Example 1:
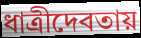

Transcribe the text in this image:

ধাত্রীদেবতায়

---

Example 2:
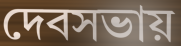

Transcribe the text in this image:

দেবসভায়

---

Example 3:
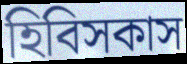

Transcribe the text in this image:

হিবিসকাস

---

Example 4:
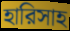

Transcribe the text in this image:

হারিসাহ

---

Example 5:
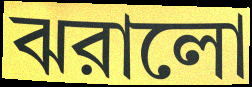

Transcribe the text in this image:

ঝরালো